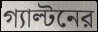
গ্যাল্টনের